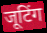
जूटिंग